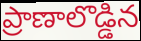
ప్రాణాలొడ్డిన